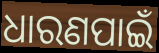
ଧାରଣପାଇଁ